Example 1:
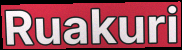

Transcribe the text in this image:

Ruakuri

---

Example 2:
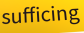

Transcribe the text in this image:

sufficing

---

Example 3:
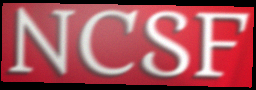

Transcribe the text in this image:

NCSF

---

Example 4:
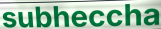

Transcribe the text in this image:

subheccha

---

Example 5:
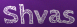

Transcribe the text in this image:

Shvas